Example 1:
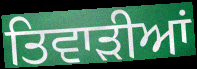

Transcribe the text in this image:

ਤਿਵਾੜੀਆਂ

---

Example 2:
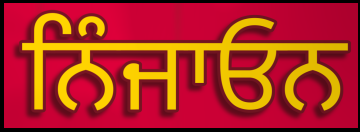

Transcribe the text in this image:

ਨਿੰਜਾਓਨ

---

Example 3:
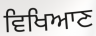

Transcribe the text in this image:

ਵਿਖਿਆਣ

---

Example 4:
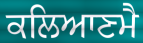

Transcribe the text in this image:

ਕਲਿਆਣਮੈ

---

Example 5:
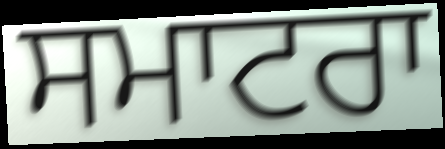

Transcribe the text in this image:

ਸਮਾਟਰਾ